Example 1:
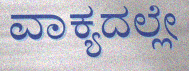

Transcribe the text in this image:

ವಾಕ್ಯದಲ್ಲೇ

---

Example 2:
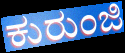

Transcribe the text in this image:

ಕುರುಂಜಿ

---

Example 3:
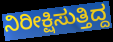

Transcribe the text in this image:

ನಿರೀಕ್ಷಿಸುತ್ತಿದ್ದ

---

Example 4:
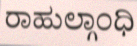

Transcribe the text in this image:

ರಾಹುಲ್ಗಾಂಧಿ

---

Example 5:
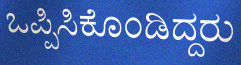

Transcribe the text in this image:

ಒಪ್ಪಿಸಿಕೊಂಡಿದ್ದರು